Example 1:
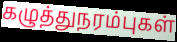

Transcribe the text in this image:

கழுத்துநரம்புகள்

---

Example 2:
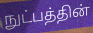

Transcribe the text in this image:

நுட்பத்தின்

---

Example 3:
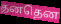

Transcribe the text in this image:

தனதென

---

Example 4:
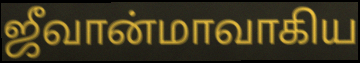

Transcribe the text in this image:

ஜீவான்மாவாகிய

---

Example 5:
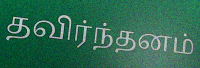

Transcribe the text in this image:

தவிர்ந்தனம்